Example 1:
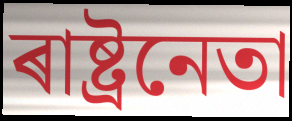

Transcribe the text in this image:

ৰাষ্ট্ৰনেতা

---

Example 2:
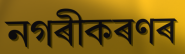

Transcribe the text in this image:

নগৰীকৰণৰ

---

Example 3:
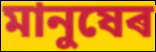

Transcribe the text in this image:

মানুষেৰ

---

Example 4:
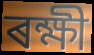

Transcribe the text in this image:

ৰক্ষী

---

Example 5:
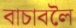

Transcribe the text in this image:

বাচাবলৈ